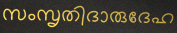
സംസൃതിദാരുദേഹ